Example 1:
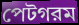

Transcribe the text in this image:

পেটগরম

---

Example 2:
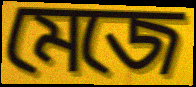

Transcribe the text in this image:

মেজে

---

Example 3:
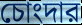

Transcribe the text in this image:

চোংদার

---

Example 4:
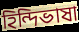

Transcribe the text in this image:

হিন্দিভাষা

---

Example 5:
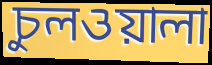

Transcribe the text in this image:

চুলওয়ালা